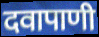
दवापाणी